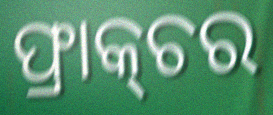
ଫ୍ରାକ୍‌ଚର